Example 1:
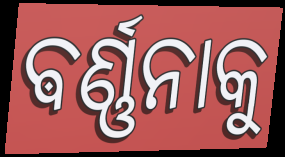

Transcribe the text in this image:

ଵର୍ଣ୍ଣନାକୁ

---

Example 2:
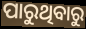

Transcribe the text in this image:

ପାରୁଥିବାରୁ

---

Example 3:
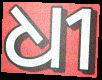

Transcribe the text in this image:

ଧୀ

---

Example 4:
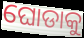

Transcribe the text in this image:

ଘୋଡାକୁ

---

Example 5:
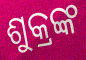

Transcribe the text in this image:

ଶୁକ୍ରଙ୍କ